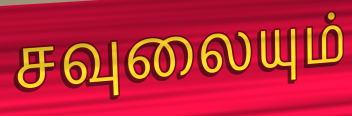
சவுலையும்